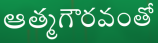
ఆత్మగౌరవంతో